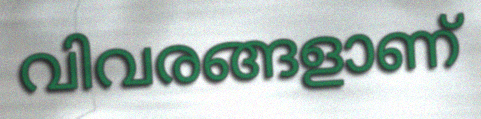
വിവരങ്ങളാണ്